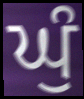
ਘੁੰ